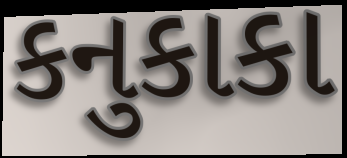
કનુકાકા